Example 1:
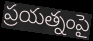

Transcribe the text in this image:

ప్రయత్నంపై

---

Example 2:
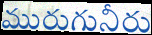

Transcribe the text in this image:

మురుగునీరు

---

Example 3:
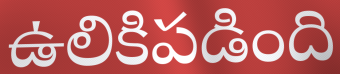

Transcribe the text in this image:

ఉలికిపడింది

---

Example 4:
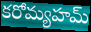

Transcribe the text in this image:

కరోమ్యహమ్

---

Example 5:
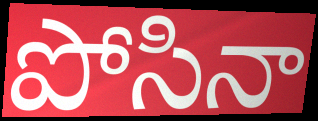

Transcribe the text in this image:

పోసినా